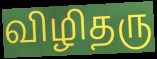
விழிதரு